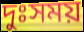
দুঃসময়